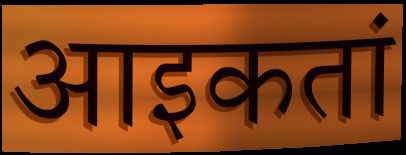
आइकतां